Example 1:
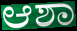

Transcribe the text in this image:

ಆಶಾ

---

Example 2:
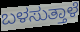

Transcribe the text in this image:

ಬಳಸುತ್ತಾಳೆ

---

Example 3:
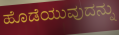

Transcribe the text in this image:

ಹೊಡೆಯುವುದನ್ನು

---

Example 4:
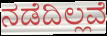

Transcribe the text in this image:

ನಡೆದಿಲ್ಲವೆ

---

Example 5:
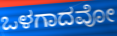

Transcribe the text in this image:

ಒಳಗಾದವೋ